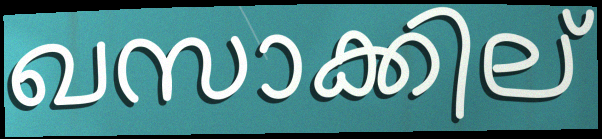
ഖസാക്കില്